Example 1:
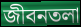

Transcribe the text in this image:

জীবনতলা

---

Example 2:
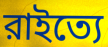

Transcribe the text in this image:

রাইত্যে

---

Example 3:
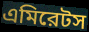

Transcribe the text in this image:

এমিরেটস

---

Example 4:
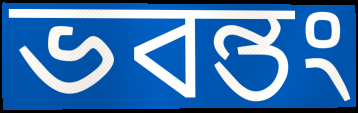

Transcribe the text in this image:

ভবন্তং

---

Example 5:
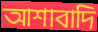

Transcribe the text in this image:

আশাবাদি